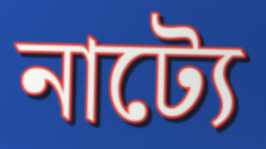
নাট্যে